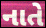
નાતે